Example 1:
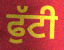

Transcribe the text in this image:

ਫੁੱਟੀ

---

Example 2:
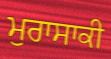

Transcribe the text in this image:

ਮੁਰਾਸਾਕੀ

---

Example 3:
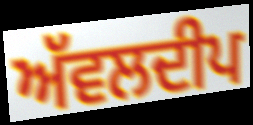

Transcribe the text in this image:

ਅੱਵਲਦੀਪ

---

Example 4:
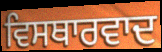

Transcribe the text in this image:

ਵਿਸਥਾਰਵਾਦ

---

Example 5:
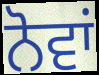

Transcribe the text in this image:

ਨੋਵਾਂ